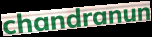
chandranun